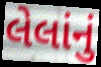
લેલાંનું